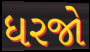
ધરજો